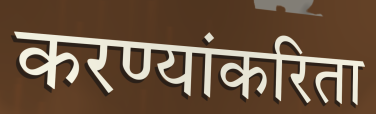
करण्यांकरिता